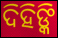
ଦିହିଙ୍କି